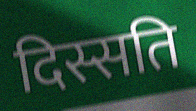
दिस्सति